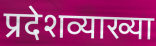
प्रदेशव्याख्या